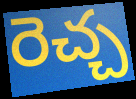
రెచ్చ